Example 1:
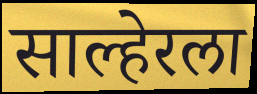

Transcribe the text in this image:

साल्हेरला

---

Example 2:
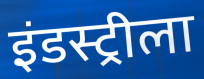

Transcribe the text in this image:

इंडस्ट्रीला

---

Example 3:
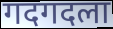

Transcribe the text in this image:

गदगदला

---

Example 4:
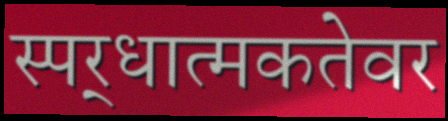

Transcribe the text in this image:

स्पर्धात्मकतेवर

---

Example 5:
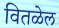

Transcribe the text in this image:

वितळेल